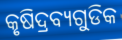
କୃଷିଦ୍ରବ୍ୟଗୁଡିକ